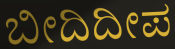
ಬೀದಿದೀಪ